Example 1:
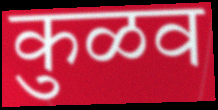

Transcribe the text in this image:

कुळव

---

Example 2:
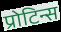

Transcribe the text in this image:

प्रोटिन्स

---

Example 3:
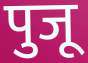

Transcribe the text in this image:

पुजू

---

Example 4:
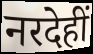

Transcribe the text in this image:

नरदेहीं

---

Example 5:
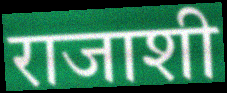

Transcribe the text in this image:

राजाशी